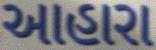
આહારા